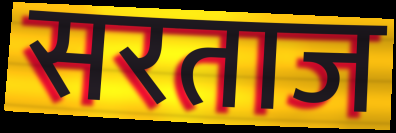
सरताज